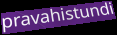
pravahistundi